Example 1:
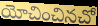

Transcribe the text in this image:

యోచించినచో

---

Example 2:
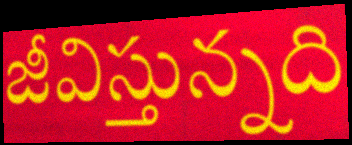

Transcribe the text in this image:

జీవిస్తున్నది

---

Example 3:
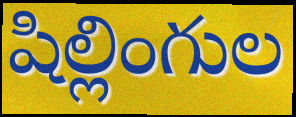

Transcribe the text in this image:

షిల్లింగుల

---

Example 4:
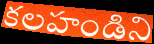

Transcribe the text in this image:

కలహండిని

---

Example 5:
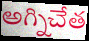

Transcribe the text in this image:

అగ్నిచేత